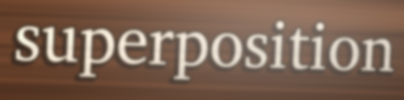
superposition